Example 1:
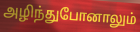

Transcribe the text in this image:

அழிந்துபோனாலும்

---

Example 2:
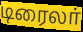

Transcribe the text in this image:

டிரைலர்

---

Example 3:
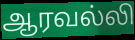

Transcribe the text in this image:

ஆரவல்லி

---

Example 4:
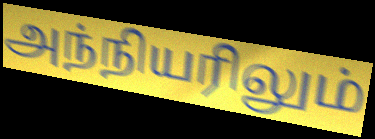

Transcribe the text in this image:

அந்நியரிலும்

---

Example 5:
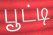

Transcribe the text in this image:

பூட்டி